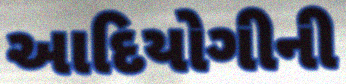
આદિયોગીની